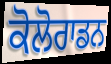
ਕੋਲੋਰਾਡਨ